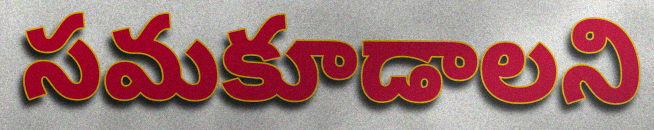
సమకూడాలని